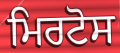
ਮਿਰਟੋਸ